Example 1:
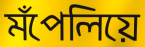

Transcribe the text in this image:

মঁপেলিয়ে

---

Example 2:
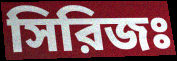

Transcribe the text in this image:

সিরিজঃ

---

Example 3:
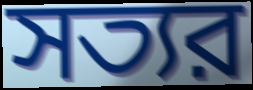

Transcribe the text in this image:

সত্যর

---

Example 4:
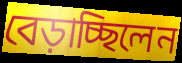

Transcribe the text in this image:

বেড়াচ্ছিলেন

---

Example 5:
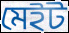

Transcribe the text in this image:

মেইট